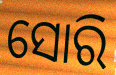
ସୋରି